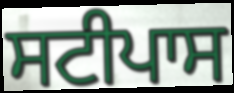
ਸਟੀਪਾਸ